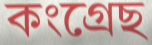
কংগ্ৰেছ